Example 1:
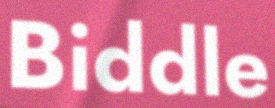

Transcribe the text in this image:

Biddle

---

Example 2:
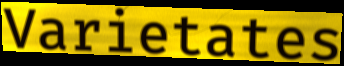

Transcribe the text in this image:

Varietates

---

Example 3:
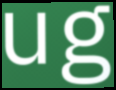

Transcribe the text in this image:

ug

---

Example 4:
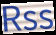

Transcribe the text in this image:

Rss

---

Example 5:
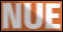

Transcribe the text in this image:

NUE